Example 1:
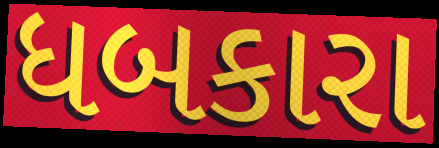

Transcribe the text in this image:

ધબકારા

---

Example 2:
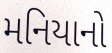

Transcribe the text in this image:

મનિયાનો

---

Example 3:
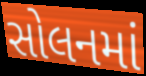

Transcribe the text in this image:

સોલનમાં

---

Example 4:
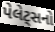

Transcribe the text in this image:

પેલેટ્સનો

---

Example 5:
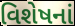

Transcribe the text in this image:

વિશેષનાં